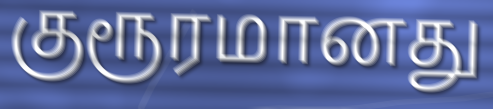
குரூரமானது